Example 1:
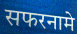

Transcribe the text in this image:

सफरनामे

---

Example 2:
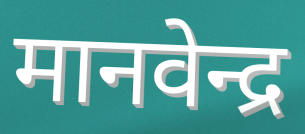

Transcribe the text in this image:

मानवेन्द्र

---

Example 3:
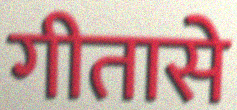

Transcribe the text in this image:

गीतासे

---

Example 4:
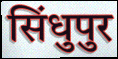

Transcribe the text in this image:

सिंधुपुर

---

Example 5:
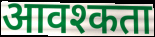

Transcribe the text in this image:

आवश्कता